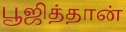
பூஜித்தான்